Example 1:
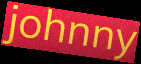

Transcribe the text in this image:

johnny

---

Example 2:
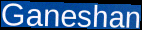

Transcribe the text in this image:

Ganeshan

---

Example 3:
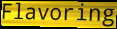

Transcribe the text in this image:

Flavoring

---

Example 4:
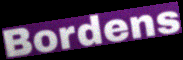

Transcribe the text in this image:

Bordens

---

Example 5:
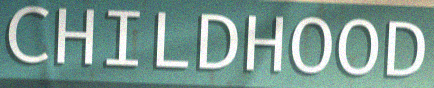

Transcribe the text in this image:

CHILDHOOD